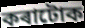
কৰাটোক